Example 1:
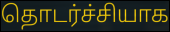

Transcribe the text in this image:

தொடர்ச்சியாக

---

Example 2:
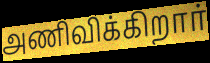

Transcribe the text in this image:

அணிவிக்கிறார்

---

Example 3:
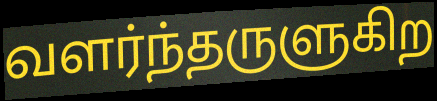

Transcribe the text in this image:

வளர்ந்தருளுகிற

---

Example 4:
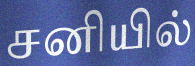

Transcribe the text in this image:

சனியில்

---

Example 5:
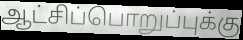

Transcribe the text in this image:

ஆட்சிப்பொறுப்புக்கு